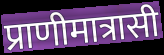
प्राणीमात्रासी